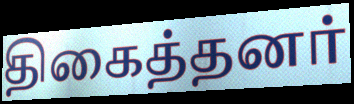
திகைத்தனர்